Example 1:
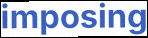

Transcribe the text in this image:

imposing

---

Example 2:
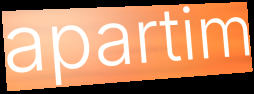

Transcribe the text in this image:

apartim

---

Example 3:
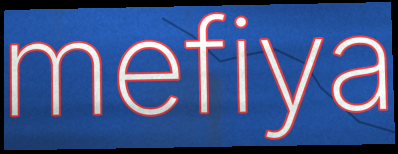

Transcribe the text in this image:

mefiya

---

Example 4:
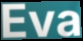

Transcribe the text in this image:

Eva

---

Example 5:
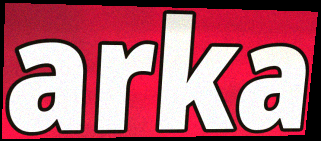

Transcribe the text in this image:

arka